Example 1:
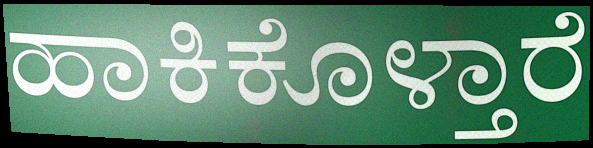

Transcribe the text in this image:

ಹಾಕಿಕೊಳ್ತಾರೆ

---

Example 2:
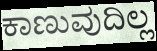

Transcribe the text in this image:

ಕಾಣುವುದಿಲ್ಲ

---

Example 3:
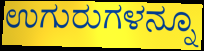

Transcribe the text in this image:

ಉಗುರುಗಳನ್ನೂ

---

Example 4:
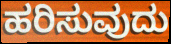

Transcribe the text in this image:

ಹರಿಸುವುದು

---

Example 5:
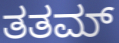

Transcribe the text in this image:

ತತಮ್